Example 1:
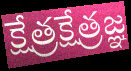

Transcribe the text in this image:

క్షేత్రక్షేత్రజ్ఞ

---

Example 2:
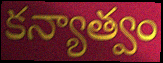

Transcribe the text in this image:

కన్యాత్వం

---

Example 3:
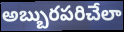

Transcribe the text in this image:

అబ్బురపరిచేలా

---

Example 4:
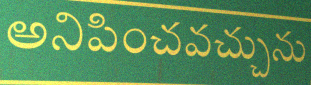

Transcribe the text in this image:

అనిపించవచ్చును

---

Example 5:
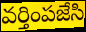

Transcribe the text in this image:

వర్తింపజేసి